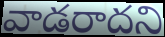
వాడరాదని